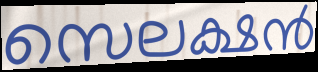
സെലക്ഷൻ